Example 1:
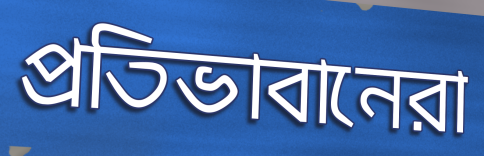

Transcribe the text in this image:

প্রতিভাবানেরা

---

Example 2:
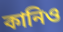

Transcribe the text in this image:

কানিও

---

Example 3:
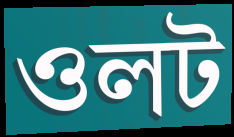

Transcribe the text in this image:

ওলট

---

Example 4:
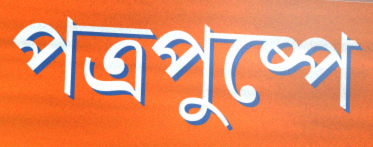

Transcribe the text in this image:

পত্রপুষ্পে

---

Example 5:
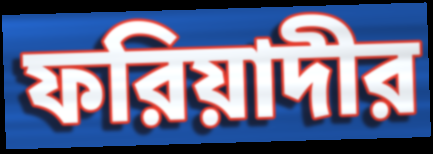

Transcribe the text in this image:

ফরিয়াদীর